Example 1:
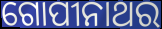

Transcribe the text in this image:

ଗୋପୀନାଥର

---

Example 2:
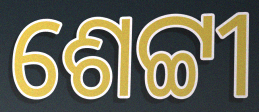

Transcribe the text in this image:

ଶେଟ୍ଟୀ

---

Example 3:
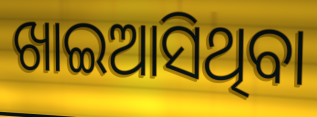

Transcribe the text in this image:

ଖାଇଆସିଥିବା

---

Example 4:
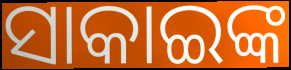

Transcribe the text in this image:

ସାକାଇଙ୍କ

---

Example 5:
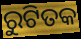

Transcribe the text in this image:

ରୁଟିତକ